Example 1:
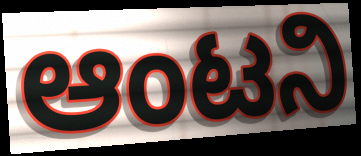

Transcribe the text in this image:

ಆಂಟನಿ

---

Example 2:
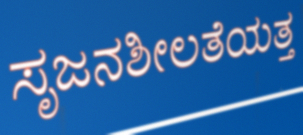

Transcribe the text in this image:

ಸೃಜನಶೀಲತೆಯತ್ತ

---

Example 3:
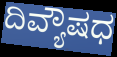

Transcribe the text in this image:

ದಿವ್ಯೌಷಧ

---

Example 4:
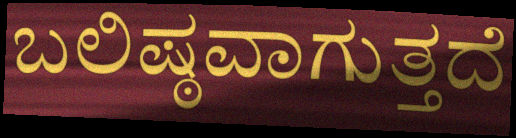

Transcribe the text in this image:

ಬಲಿಷ್ಠವಾಗುತ್ತದೆ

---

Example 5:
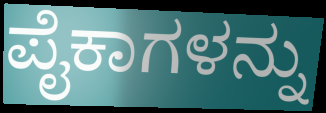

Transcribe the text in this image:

ಪೈಕಾಗಳನ್ನು